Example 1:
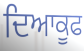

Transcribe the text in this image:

ਦਿਆਕੂਫ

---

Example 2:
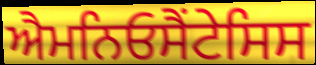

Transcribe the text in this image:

ਐਮਨਿਓਸੈਂਟੇਸਿਸ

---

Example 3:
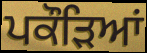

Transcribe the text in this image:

ਪਕੌਡ਼ਿਆਂ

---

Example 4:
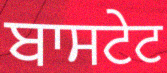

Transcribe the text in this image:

ਬਾਸਟੇਟ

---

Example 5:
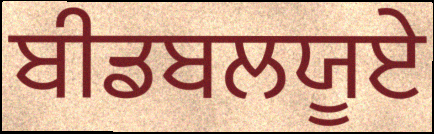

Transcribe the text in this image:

ਬੀਡਬਲਯੂਏ